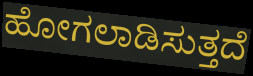
ಹೋಗಲಾಡಿಸುತ್ತದೆ